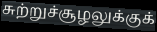
சுற்றுச்சூழலுக்குக்